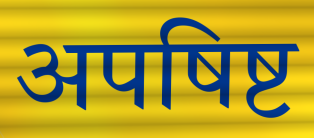
अपषिष्ट